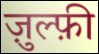
ज़ुल्फ़ी